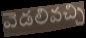
వెడలివచ్చి